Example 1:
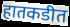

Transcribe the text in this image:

हातकडीत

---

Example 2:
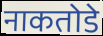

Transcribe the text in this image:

नाकतोडे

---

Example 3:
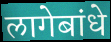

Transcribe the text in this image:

लागेबांधे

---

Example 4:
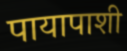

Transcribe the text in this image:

पायापाशी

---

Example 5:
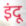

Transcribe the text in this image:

इंदू